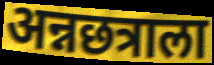
अन्नछत्राला